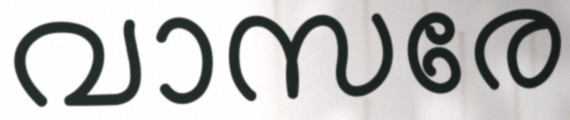
വാസരേ